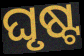
ଘୃଷ୍ଟ